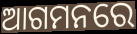
ଆଗମନରେ